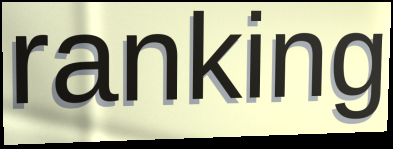
ranking